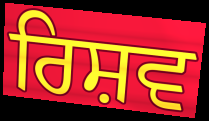
ਰਿਸ਼ਵ